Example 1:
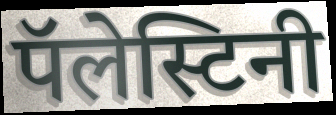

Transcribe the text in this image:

पॅलेस्टिनी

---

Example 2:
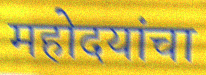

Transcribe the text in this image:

महोदयांचा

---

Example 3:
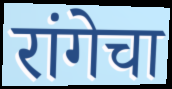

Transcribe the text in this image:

रांगेचा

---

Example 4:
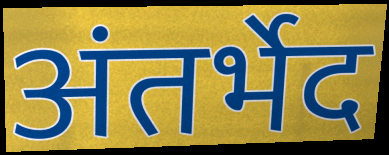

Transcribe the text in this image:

अंतर्भेद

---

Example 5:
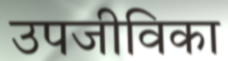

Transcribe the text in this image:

उपजीविका